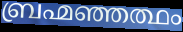
ബ്രഹ്മഞ്ഞത്ഥം